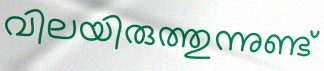
വിലയിരുത്തുന്നുണ്ട്